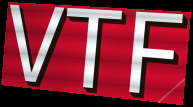
VTF